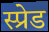
स्‍प्रेड